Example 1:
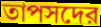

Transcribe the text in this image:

তাপসদের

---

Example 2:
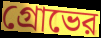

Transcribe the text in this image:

গ্রোভের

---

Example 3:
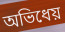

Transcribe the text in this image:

অভিধেয়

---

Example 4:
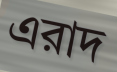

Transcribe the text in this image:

এরাদ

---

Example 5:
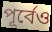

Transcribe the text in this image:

পূর্বেও